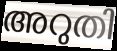
അറുതി